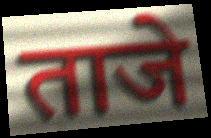
ताजे